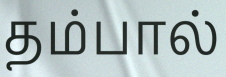
தம்பால்